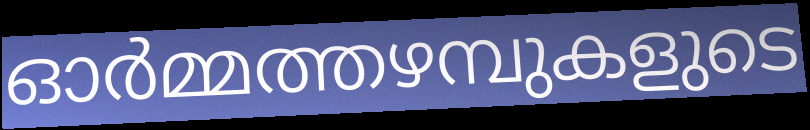
ഓർമ്മത്തഴമ്പുകളുടെ